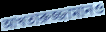
আখতারুজ্জামানও